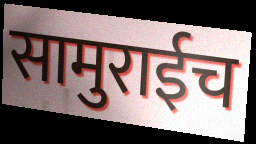
सामुराईच